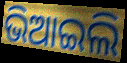
ଭିଆଇଲି